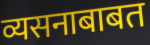
व्यसनाबाबत